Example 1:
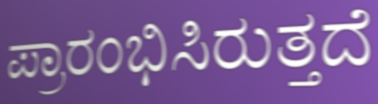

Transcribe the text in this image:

ಪ್ರಾರಂಭಿಸಿರುತ್ತದೆ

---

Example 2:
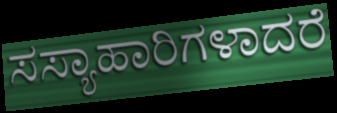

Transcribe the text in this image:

ಸಸ್ಯಾಹಾರಿಗಳಾದರೆ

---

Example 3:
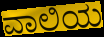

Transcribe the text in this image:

ವಾಲಿಯ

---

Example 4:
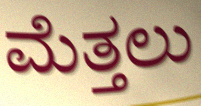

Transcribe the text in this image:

ಮೆತ್ತಲು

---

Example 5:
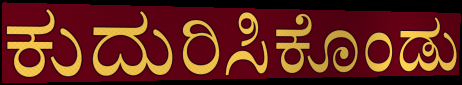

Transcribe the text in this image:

ಕುದುರಿಸಿಕೊಂಡು